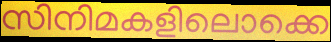
സിനിമകളിലൊക്കെ